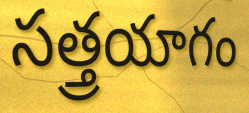
సత్త్రయాగం